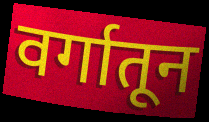
वर्गातून